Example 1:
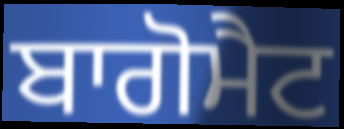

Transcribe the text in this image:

ਬਾਗੋਮੈਟ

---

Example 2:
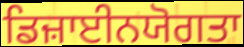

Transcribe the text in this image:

ਡਿਜ਼ਾਈਨਯੋਗਤਾ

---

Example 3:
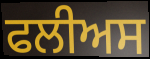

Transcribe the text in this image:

ਫਲੀਅਸ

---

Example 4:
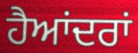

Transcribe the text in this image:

ਹੈਆਂਦਰਾਂ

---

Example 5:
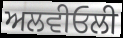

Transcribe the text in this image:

ਅਲਵੀਓਲੀ